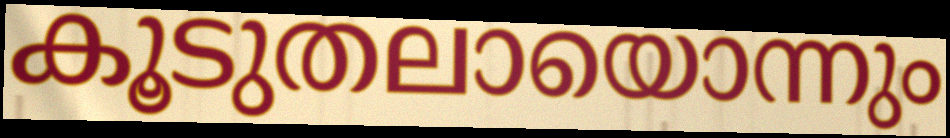
കൂടുതലായൊന്നും